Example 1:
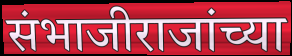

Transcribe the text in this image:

संभाजीराजांच्या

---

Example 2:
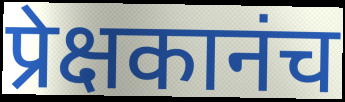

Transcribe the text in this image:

प्रेक्षकानंच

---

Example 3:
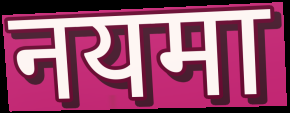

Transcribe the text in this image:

नयमा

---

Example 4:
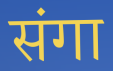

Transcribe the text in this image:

संगा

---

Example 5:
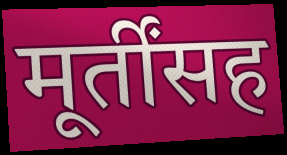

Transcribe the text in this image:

मूर्तींसह